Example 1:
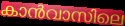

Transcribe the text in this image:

കാൻവാസിലെ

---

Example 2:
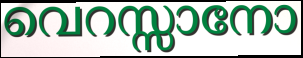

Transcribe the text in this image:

വെറസ്സാനോ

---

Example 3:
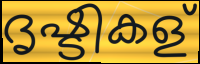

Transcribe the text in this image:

ദൃഷ്ടികള്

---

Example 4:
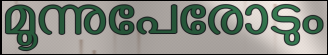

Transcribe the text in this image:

മൂന്നുപേരോടും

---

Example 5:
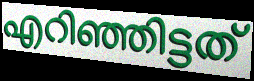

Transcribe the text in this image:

എറിഞ്ഞിട്ടത്